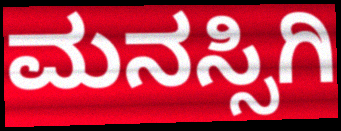
ಮನಸ್ಸಿಗಿ